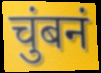
चुंबनं